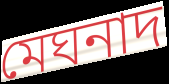
মেঘনাদ